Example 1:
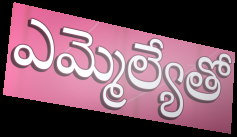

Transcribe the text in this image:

ఎమ్మెల్యేతో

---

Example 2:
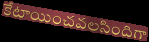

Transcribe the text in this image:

కేటాయించవలసిందిగా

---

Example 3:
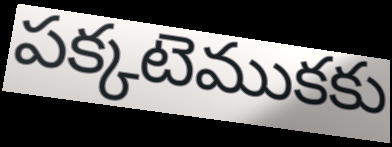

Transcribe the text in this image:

పక్కటెముకకు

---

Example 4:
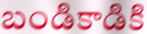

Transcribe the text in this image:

బండికాడికి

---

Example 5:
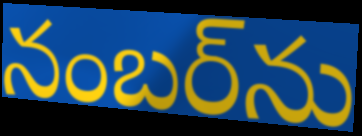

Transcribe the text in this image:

నంబర్‌ను